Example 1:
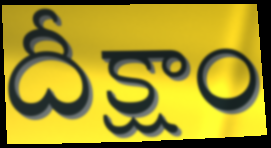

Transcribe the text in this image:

దీక్షాం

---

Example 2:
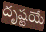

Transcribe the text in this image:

దృష్టయే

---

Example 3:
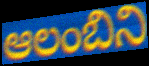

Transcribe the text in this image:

ఆలంబిని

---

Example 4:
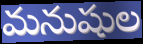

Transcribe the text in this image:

మనుషుల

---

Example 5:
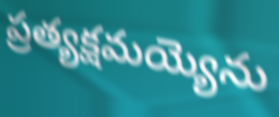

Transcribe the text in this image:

ప్రత్యక్షమయ్యెను